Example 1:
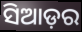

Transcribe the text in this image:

ସିଆଡ଼ର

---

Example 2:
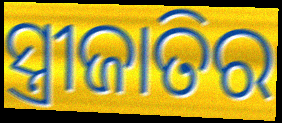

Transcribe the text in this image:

ସ୍ତ୍ରୀଜାତିର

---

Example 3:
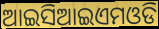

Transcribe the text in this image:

ଆଇସିଆଇଏମଓଡି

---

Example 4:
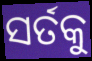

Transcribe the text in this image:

ସର୍ତକୁ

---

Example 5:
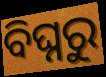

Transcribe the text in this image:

ବିଘ୍ନରୁ